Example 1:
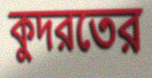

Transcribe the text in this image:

কুদরতের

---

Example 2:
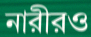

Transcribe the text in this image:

নারীরও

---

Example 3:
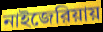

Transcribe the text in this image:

নাইজেরিয়ায়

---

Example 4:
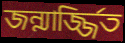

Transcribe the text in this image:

জন্মার্জ্জিত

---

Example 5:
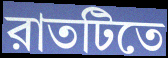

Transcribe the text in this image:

রাতটিতে